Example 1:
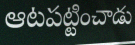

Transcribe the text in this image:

ఆటపట్టించాడు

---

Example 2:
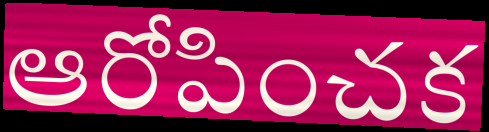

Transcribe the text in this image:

ఆరోపించక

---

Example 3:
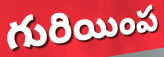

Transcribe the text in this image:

గురియింప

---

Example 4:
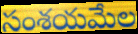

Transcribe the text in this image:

సంశయమేల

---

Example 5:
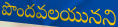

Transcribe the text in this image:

పొందవలయునని